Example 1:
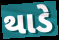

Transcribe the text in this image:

થાડે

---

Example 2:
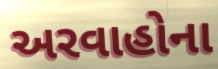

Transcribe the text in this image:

અરવાહોના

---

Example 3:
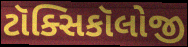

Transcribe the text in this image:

ટૉક્સિકૉલોજી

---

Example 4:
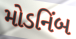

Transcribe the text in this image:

મોડનિંબ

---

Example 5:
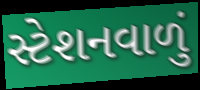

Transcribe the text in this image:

સ્ટેશનવાળું